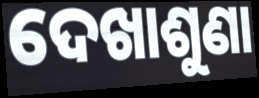
ଦେଖାଶୁଣା